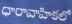
ధారావాహికలో